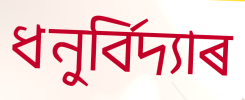
ধনুৰ্বিদ্যাৰ